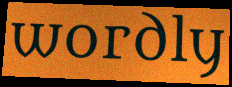
wordly